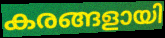
കരങ്ങളായി